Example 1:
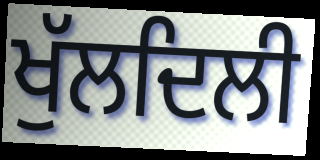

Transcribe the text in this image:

ਖੁੱਲਦਿਲੀ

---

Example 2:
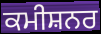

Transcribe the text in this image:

ਕਮੀਸ਼ਨਰ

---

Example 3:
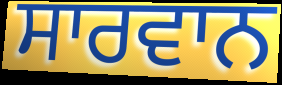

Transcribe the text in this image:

ਸਾਰਵਾਨ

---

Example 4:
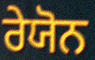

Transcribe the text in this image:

ਰੇਯੋਨ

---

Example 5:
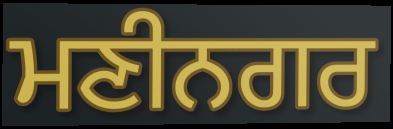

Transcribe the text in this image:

ਮਣੀਨਗਰ